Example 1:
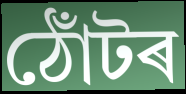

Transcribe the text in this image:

ঠোঁটৰ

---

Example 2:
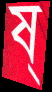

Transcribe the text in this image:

ষ্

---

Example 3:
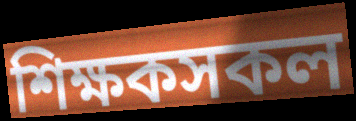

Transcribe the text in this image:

শিক্ষকসকল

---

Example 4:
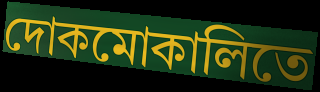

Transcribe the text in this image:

দোকমোকালিতে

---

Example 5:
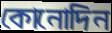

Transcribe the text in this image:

কোনোদিন